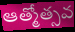
ఆత్మోత్సవ